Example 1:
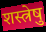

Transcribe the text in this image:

शस्त्रेषु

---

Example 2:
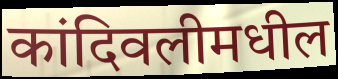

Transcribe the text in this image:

कांदिवलीमधील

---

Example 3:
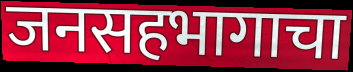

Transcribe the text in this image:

जनसहभागाचा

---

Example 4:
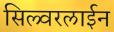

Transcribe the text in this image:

सिल्वरलाईन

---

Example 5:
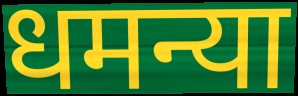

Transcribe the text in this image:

धमन्या